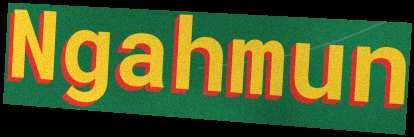
Ngahmun